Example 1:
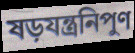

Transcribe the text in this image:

ষড়যন্ত্রনিপুণ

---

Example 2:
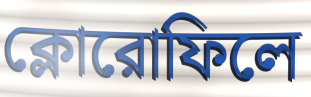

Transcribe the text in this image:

ক্লোরোফিলে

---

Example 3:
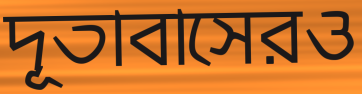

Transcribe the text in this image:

দূতাবাসেরও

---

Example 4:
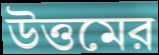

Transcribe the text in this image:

উত্তমের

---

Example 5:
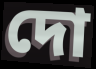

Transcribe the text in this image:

দো